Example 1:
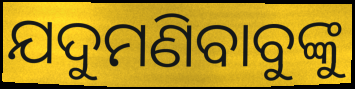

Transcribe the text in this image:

ଯଦୁମଣିବାବୁଙ୍କୁ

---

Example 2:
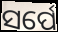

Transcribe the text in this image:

ସର୍ପେ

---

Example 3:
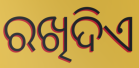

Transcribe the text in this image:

ରଖିଦିଏ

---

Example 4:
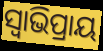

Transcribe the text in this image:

ସ୍ଵାଭିପ୍ରାୟ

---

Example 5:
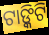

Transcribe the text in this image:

ଟାଙ୍କିଟି